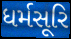
ધર્મસૂરિ